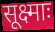
सूक्ष्माः